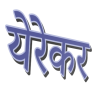
येरेकर